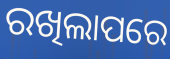
ରଖିଲାପରେ